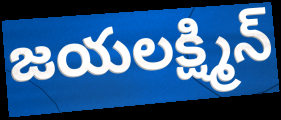
జయలక్ష్మిన్